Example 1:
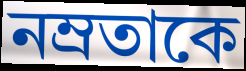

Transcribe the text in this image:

নম্রতাকে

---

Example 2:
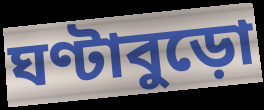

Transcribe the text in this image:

ঘণ্টাবুড়ো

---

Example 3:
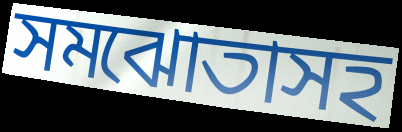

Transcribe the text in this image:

সমঝোতাসহ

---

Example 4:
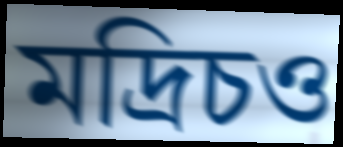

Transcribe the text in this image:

মদ্রিচও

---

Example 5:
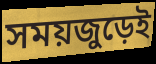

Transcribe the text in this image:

সময়জুড়েই